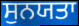
ਸੁਨਯਤਾ